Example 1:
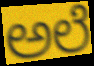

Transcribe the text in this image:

ಅಲೆ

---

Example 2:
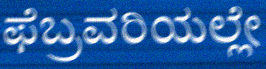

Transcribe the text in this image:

ಫೆಬ್ರವರಿಯಲ್ಲೇ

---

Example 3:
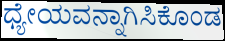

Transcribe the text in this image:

ಧ್ಯೇಯವನ್ನಾಗಿಸಿಕೊಂಡ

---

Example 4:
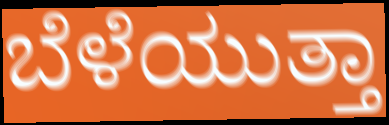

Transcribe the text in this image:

ಬೆಳೆಯುತ್ತಾ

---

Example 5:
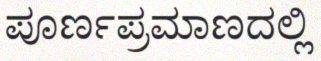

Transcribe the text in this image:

ಪೂರ್ಣಪ್ರಮಾಣದಲ್ಲಿ